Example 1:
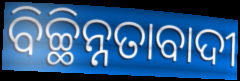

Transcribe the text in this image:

ବିଚ୍ଛିନ୍ନତାବାଦୀ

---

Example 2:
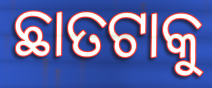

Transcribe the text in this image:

ଛାତଟାକୁ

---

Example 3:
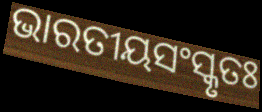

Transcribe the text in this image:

ଭାରତୀୟସଂସ୍କୃତଃ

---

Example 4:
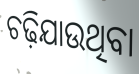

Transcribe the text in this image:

ଚଢ଼ିଯାଉଥିବା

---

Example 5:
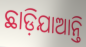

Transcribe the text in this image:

ଛାଡ଼ିଯାଆନ୍ତି